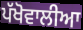
ਪੱਖੋਵਾਲੀਆ